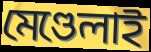
মেণ্ডেলাই